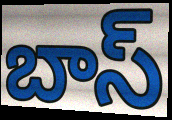
బాస్